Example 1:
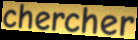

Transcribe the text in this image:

chercher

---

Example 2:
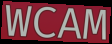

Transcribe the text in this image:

WCAM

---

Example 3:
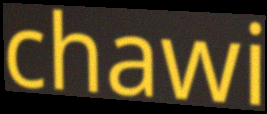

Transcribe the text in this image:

chawi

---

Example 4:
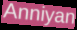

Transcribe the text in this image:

Anniyan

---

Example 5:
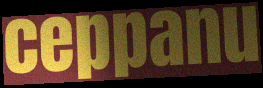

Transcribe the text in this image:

ceppanu